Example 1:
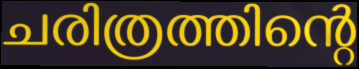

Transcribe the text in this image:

ചരിത്രത്തിന്റെ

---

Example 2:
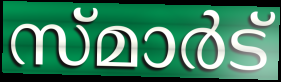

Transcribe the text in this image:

സ്മാർട്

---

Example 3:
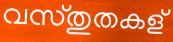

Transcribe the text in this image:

വസ്തുതകള്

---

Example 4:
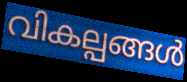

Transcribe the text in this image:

വികല്പങ്ങൾ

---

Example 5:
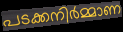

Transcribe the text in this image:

പടക്കനിർമ്മാണ